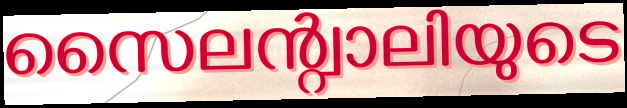
സൈലന്റ്വാലിയുടെ